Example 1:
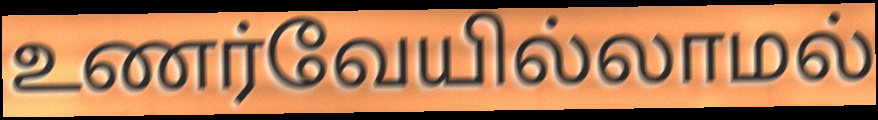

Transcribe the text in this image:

உணர்வேயில்லாமல்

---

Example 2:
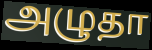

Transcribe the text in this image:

அழுதா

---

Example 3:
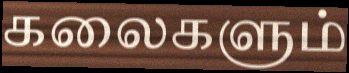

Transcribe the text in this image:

கலைகளும்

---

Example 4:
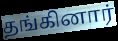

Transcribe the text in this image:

தங்கினார்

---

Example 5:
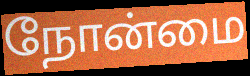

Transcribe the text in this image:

நோன்மை